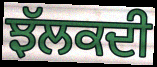
ਝੱਲਕਦੀ